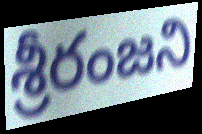
శ్రీరంజని